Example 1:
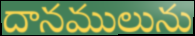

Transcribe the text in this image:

దానములును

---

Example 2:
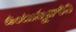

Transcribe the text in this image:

ఉంటున్నవారిని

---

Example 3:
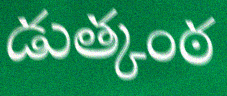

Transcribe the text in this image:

డుత్కంఠ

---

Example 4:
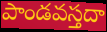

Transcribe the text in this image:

పాండవస్తదా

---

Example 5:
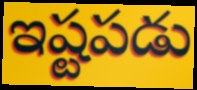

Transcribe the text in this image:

ఇష్టపడు